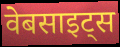
वेबसाइट्स